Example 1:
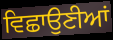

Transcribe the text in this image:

ਵਿਛਾਉਣੀਆਂ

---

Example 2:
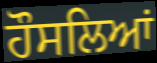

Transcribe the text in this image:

ਹੌਸਲਿਆਂ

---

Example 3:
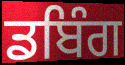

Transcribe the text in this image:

ਡਬਿੰਗ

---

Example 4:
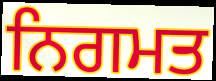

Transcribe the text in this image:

ਨਿਗਮਤ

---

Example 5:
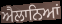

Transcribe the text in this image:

ਐਲਾਨਿਆਂ